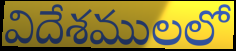
విదేశములలో